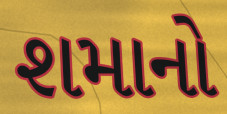
શમાનો